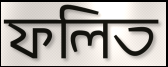
ফলিত